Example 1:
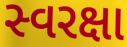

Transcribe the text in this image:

સ્વરક્ષા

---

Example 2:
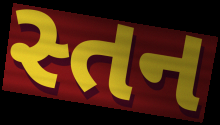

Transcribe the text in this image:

સ્તન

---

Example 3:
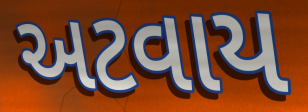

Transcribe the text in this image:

અટવાય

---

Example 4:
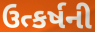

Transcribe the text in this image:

ઉત્કર્ષની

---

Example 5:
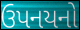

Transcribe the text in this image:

ઉપનયનો